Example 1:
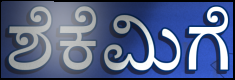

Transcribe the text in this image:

ಶೆಕೆಮಿಗೆ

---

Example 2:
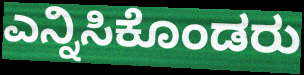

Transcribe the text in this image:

ಎನ್ನಿಸಿಕೊಂಡರು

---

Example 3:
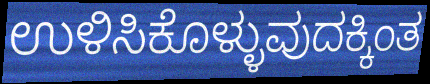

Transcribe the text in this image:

ಉಳಿಸಿಕೊಳ್ಳುವುದಕ್ಕಿಂತ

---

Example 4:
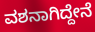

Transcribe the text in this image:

ವಶನಾಗಿದ್ದೇನೆ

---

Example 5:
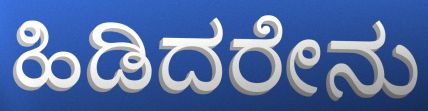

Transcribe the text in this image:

ಹಿಡಿದರೇನು